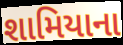
શામિયાના